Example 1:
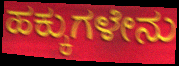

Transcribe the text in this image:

ಹಕ್ಕುಗಳೇನು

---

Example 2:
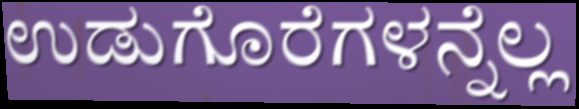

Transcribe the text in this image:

ಉಡುಗೊರೆಗಳನ್ನೆಲ್ಲ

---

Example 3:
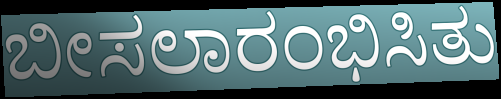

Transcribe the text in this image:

ಬೀಸಲಾರಂಭಿಸಿತು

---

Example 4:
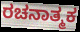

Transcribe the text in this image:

ರಚನಾತ್ಮಕ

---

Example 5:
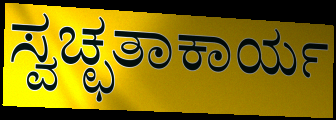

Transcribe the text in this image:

ಸ್ವಚ್ಛತಾಕಾರ್ಯ